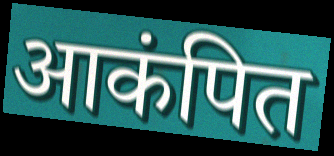
आकंपित